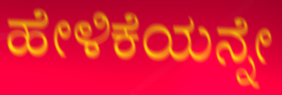
ಹೇಳಿಕೆಯನ್ನೇ